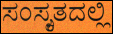
ಸಂಸ್ಕೃತದಲ್ಲಿ